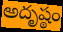
అదృష్ఠం